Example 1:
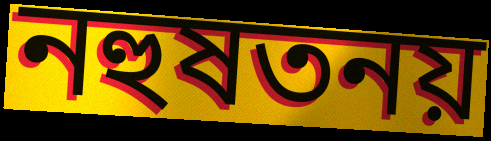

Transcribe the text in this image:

নহুষতনয়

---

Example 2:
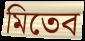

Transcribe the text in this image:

মিতেব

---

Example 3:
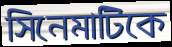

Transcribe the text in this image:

সিনেমাটিকে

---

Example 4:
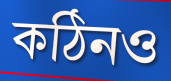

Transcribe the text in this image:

কঠিনও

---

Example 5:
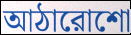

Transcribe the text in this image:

আঠারোশো